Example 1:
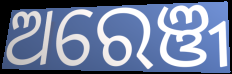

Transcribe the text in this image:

ଅରେଞ୍ଜ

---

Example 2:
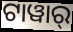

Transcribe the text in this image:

ଟାୱାର୍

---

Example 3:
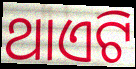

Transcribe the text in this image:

ଥାଏଟି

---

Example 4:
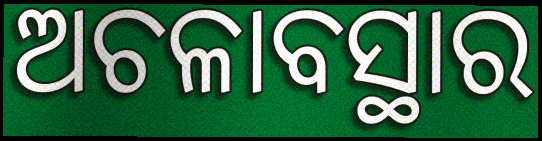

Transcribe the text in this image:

ଅଚଳାବସ୍ଥାର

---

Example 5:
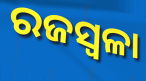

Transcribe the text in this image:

ରଜସ୍ବଳା